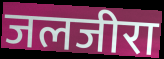
जलजीरा